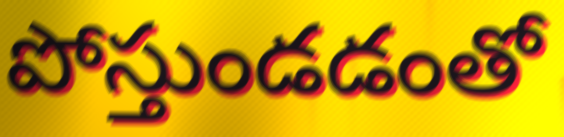
పోస్తుండడంతో